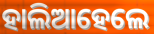
ହାଲିଆହେଲେ